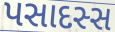
પસાદસ્સ